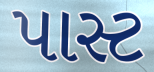
પાસ્ટ